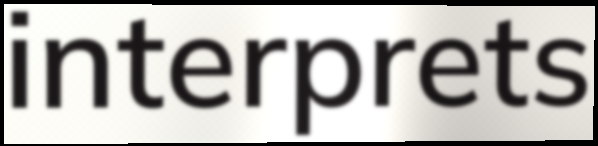
interprets